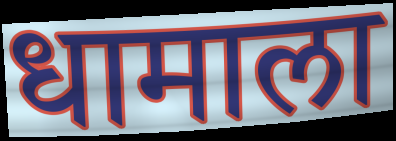
धामाला